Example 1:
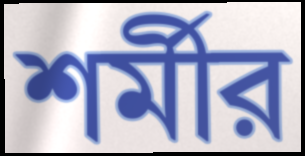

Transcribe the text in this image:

শর্মীর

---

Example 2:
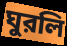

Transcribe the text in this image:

ঘুরলি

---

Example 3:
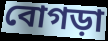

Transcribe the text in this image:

বোগড়া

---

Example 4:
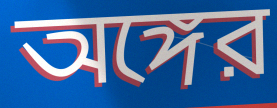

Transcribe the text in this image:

অঙ্গের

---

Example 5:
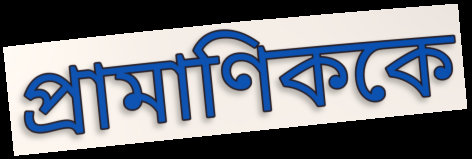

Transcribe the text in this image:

প্রামাণিককে